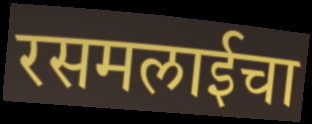
रसमलाईचा